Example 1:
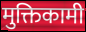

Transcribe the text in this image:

मुक्तिकामी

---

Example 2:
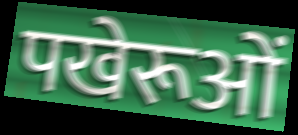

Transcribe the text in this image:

पखेरूओं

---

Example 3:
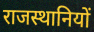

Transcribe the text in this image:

राजस्थानियों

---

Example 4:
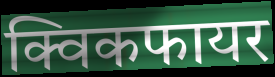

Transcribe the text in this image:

क्विकफायर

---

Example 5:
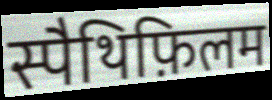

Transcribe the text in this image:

स्पैथिफ़िलम